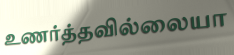
உணர்த்தவில்லையா